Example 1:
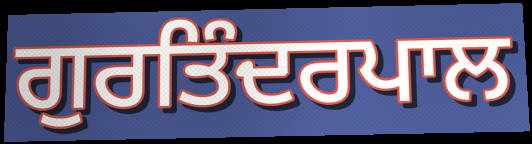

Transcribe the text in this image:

ਗੁਰਤਿੰਦਰਪਾਲ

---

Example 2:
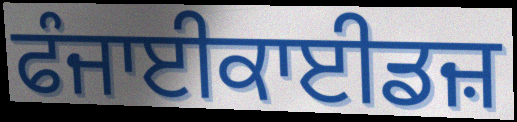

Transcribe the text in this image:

ਫੰਜਾਈਕਾਈਡਜ਼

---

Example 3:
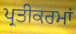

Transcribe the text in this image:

ਪ੍ਰਤੀਕਰਮਾਂ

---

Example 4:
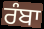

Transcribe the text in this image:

ਰੰਬਾ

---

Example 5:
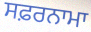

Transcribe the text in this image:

ਸਫ਼ਰਨਾਮਾ